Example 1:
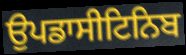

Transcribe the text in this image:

ਉਪਡਾਸੀਟਿਨਿਬ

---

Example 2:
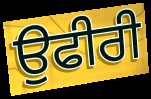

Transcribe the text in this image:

ਉਫੀਰੀ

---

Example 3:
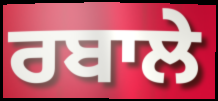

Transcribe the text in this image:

ਰਬਾਲੇ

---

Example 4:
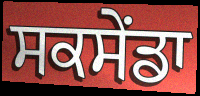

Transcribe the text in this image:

ਸਕਸੇਂਡਾ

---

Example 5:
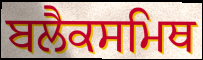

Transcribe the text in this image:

ਬਲੈਕਸਮਿਥ